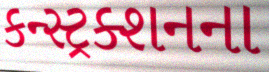
કન્સ્ટ્રક્શનના